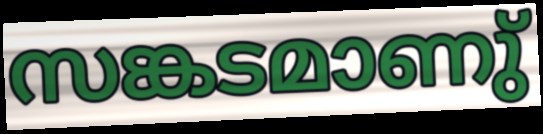
സങ്കടമാണു്